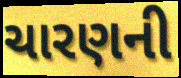
ચારણની